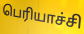
பெரியாச்சி